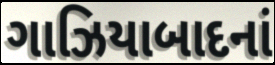
ગાઝિયાબાદનાં